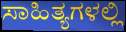
ಸಾಹಿತ್ಯಗಳಲ್ಲಿ